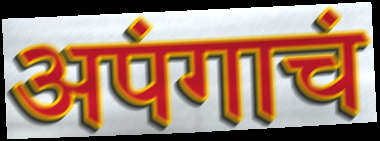
अपंगाचं